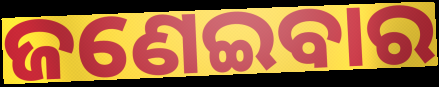
ଜଣେଇବାର